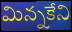
మిన్నకేని